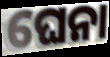
ଘେନା